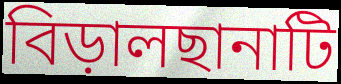
বিড়ালছানাটি